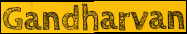
Gandharvan